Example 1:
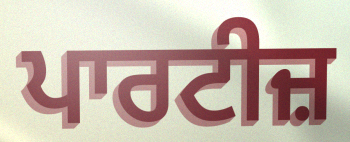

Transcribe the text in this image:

ਪਾਰਟੀਜ਼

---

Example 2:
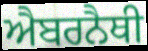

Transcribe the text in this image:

ਐਬਰਨੈਥੀ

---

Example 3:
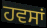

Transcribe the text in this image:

ਹਵਸਾਂ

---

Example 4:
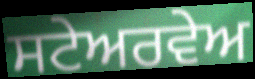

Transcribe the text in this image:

ਸਟੇਅਰਵੇਅ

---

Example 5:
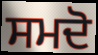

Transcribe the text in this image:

ਸਮਦੋ